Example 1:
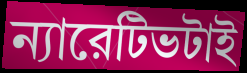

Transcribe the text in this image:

ন্যারেটিভটাই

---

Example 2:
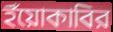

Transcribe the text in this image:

ইঁয়োকাবির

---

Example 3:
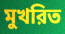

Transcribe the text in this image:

মুখরিত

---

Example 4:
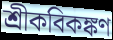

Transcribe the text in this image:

শ্রীকবিকঙ্কণ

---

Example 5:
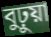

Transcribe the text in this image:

বুঢ়ুয়া